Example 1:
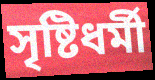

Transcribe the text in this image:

সৃষ্টিধর্মী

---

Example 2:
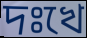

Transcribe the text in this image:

দঃখে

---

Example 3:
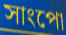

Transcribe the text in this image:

সাংপো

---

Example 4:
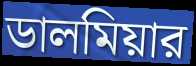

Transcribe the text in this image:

ডালমিয়ার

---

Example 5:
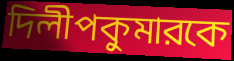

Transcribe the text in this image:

দিলীপকুমারকে